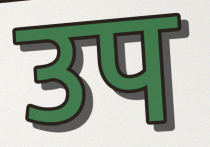
उप